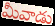
మీవాడు